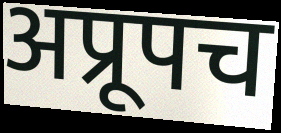
अप्रूपच